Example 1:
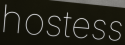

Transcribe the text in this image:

hostess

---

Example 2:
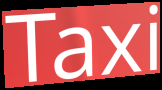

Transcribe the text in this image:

Taxi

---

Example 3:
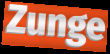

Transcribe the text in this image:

Zunge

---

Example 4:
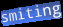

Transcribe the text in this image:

smiting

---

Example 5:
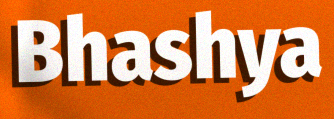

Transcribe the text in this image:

Bhashya